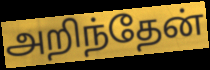
அறிந்தேன்